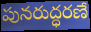
పునరుద్ధరణే